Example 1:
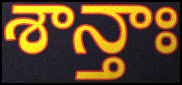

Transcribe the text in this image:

శాన్తాః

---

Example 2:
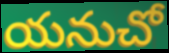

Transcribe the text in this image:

యనుచో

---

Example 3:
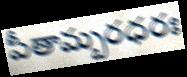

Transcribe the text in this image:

పీతామ్బరధరః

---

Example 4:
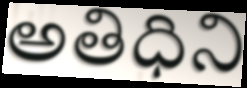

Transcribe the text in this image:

అతిధిని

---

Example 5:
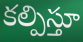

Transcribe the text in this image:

కల్పిస్తూ